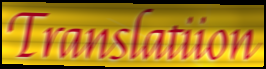
Translatiion